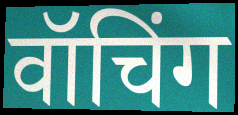
वॉचिंग